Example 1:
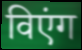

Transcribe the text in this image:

विएंग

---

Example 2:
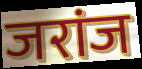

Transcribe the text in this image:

जरांज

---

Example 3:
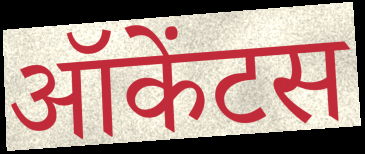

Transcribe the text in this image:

ऑकेंटस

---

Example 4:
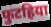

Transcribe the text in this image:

फुटहिया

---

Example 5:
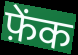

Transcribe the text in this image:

फ़ेंक